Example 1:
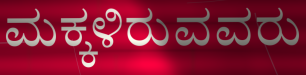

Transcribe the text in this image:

ಮಕ್ಕಳಿರುವವರು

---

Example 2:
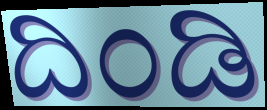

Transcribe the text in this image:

ದಿಂಡಿ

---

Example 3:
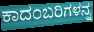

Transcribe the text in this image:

ಕಾದಂಬರಿಗಳನ್ನ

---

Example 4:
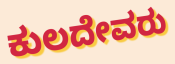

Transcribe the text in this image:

ಕುಲದೇವರು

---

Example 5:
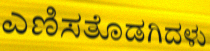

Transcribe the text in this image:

ಎಣಿಸತೊಡಗಿದಳು